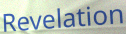
Revelation